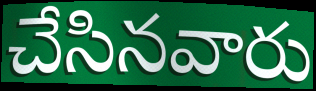
చేసినవారు